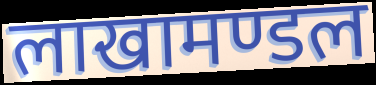
लाखामण्डल